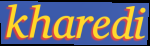
kharedi